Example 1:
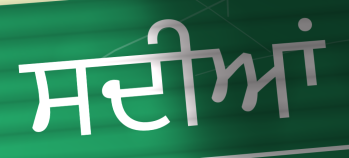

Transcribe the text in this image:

ਸਦੀਆਂ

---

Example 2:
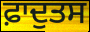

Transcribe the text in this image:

ਫ਼ਾਦੁਤਸ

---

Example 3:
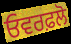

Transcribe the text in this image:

ਓਵਰਫ਼ਲੋ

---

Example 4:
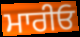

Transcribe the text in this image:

ਮਾਰੀਓ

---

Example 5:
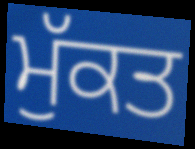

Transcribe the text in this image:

ਮੁੱਕਤ